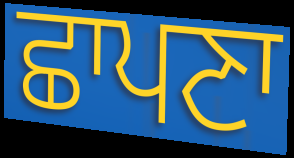
ਛਾਪਣਾ